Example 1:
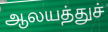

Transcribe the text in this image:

ஆலயத்துச்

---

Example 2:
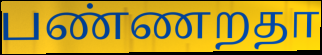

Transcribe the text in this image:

பண்ணறதா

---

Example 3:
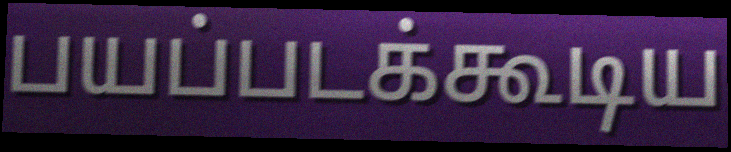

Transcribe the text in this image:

பயப்படக்கூடிய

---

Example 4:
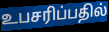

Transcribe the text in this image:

உபசரிப்பதில்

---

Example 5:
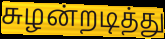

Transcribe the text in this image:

சுழன்றடித்து